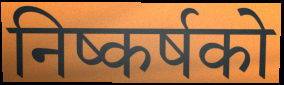
निष्कर्षको